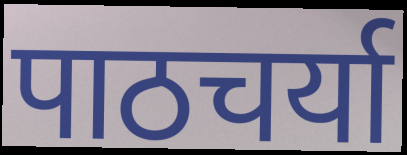
पाठचर्या